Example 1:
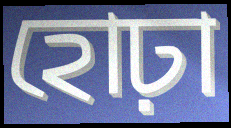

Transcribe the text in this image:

হোঢ়া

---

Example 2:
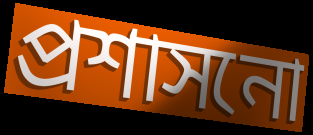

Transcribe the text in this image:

প্ৰশাসনো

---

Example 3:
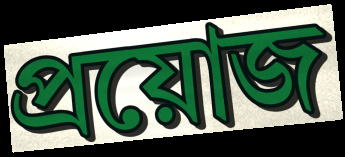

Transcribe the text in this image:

প্ৰয়োজ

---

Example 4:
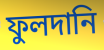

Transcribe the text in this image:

ফুলদানি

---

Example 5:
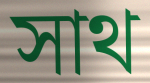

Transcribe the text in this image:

সাথ